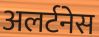
अलर्टनेस